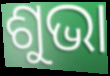
ଶୁଭା